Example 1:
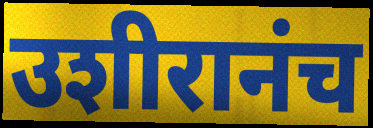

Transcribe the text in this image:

उशीरानंच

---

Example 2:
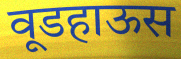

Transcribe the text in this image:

वूडहाऊस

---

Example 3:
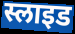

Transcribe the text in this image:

स्लाइड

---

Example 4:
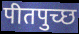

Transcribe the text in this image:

पीतपुच्छ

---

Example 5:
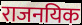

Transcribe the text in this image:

राजनयिक